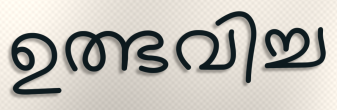
ഉത്ഭവിച്ച